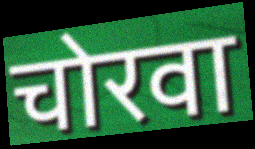
चोरवा